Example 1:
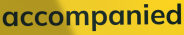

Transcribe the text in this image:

accompanied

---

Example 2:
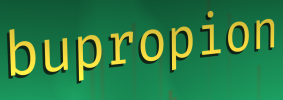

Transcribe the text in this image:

bupropion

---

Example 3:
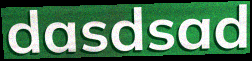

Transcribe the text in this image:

dasdsad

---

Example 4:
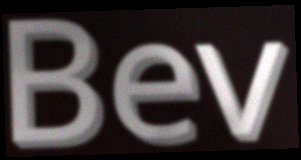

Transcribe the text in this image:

Bev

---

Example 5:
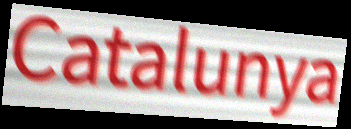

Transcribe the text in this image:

Catalunya